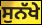
ਸੁਨੱਖੇ